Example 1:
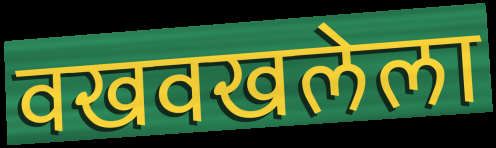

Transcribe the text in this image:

वखवखलेला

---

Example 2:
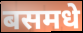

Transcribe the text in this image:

बसमधे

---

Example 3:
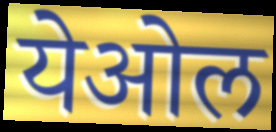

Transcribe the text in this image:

येओल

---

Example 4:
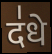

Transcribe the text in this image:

द॑धे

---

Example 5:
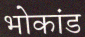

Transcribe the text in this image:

भोकांड